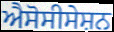
ਐਸੋਸੀਸੇਸ਼ਨ